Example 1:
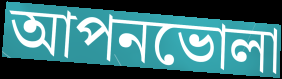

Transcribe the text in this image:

আপনভোলা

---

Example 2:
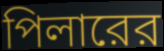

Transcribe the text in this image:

পিলারের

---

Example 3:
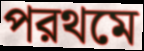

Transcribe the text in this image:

পরথমে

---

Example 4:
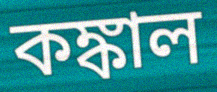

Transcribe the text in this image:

কঙ্কাল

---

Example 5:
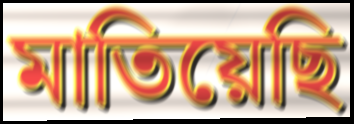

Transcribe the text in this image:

মাতিয়েছি